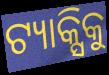
ଟ୍ୟାକ୍ସିକୁ